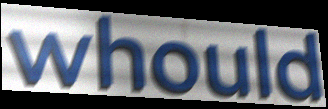
whould